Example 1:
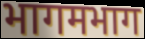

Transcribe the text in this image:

भागमभाग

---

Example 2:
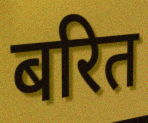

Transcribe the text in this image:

बरित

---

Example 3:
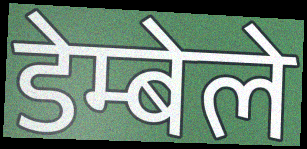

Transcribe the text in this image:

डेम्बेले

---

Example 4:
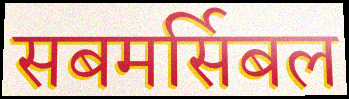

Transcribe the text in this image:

सबमर्सिबल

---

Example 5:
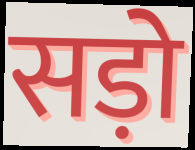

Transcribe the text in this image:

सड़ो